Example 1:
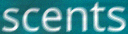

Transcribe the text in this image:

scents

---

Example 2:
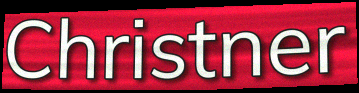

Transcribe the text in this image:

Christner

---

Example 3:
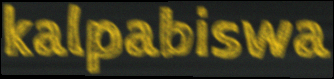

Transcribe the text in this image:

kalpabiswa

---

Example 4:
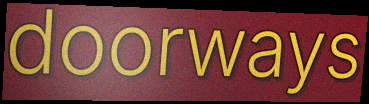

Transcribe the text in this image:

doorways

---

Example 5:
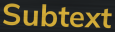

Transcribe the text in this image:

Subtext